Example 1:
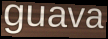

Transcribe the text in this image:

guava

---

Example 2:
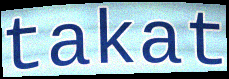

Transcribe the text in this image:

takat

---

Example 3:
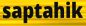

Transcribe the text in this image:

saptahik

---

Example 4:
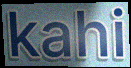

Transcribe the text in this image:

kahi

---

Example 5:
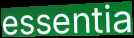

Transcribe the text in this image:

essentia